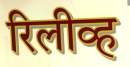
रिलीव्ह